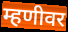
म्हणीवर